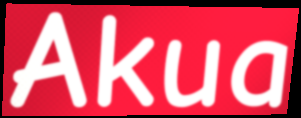
Akua